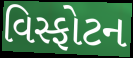
વિસ્ફોટન